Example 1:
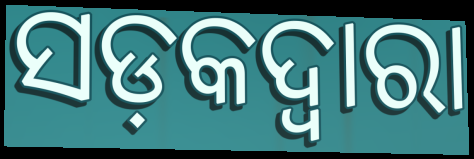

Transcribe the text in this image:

ସଡ଼କଦ୍ୱାରା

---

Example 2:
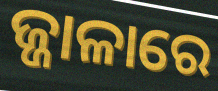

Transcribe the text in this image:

ଜ୍ଜାଳାରେ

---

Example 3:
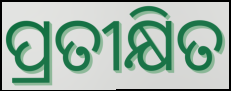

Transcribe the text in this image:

ପ୍ରତୀକ୍ଷିତ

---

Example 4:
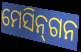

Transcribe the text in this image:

ମେସିନ୍‌ଗନ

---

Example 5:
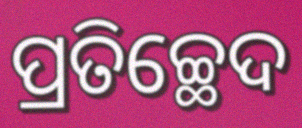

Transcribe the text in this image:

ପ୍ରତିଚ୍ଛେଦ